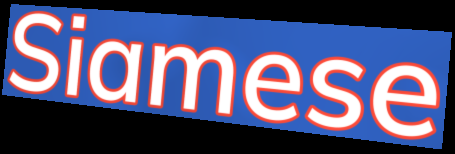
Siamese